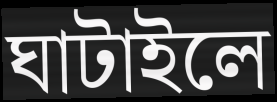
ঘাটাইলে